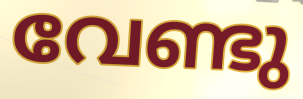
വേണ്ടു